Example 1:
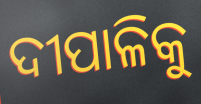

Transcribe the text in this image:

ଦୀପାଳିକୁ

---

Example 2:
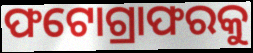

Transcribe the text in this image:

ଫଟୋଗ୍ରାଫରକୁ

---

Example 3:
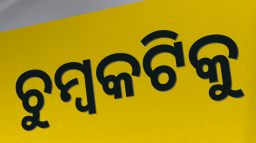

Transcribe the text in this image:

ଚୁମ୍ବକଟିକୁ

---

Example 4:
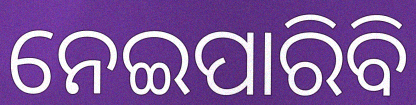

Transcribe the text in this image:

ନେଇପାରିବି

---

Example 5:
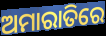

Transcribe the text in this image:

ଅମାରାତିରେ